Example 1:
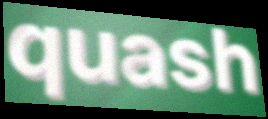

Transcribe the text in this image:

quash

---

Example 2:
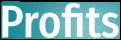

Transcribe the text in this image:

Profits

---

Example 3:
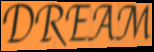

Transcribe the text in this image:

DREAM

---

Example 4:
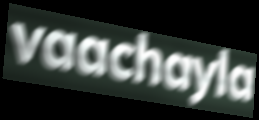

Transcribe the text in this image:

vaachayla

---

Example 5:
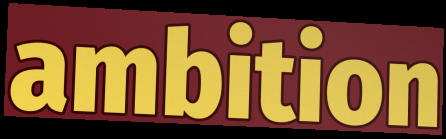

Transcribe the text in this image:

ambition